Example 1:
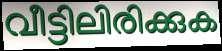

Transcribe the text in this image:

വീട്ടിലിരിക്കുക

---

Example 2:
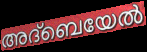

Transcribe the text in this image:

അദ്ബെയേൽ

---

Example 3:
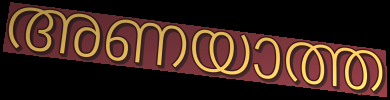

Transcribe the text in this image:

അണയാത്ത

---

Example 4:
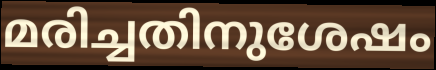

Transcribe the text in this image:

മരിച്ചതിനുശേഷം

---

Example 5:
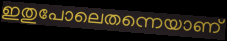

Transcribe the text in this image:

ഇതുപോലെതന്നെയാണ്